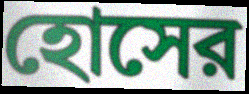
হোসের